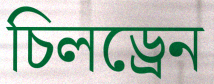
চিলড্ৰেন